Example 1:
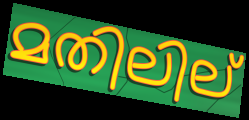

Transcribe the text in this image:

മതിലില്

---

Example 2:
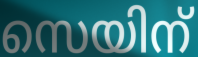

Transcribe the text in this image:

സെയിന്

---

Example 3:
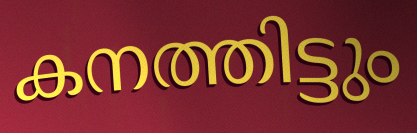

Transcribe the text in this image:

കനത്തിട്ടും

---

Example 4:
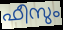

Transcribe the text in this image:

ഫീസും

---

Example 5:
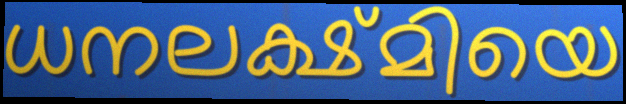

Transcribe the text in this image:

ധനലക്ഷ്മിയെ